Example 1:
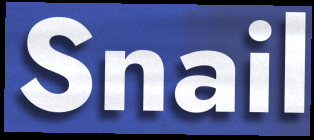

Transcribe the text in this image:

Snail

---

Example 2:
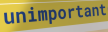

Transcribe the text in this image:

unimportant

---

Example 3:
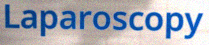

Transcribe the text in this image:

Laparoscopy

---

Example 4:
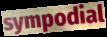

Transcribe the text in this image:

sympodial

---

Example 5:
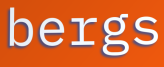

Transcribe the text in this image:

bergs